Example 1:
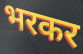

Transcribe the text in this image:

भरकर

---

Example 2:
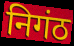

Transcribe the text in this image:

निगंठ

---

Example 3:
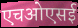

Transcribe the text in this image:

एचओएसई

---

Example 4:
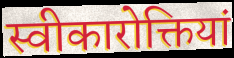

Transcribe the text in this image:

स्वीकारोक्तियां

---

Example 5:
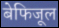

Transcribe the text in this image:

बेफिजूल